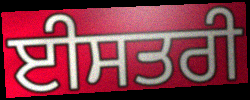
ਈਸਤਰੀ